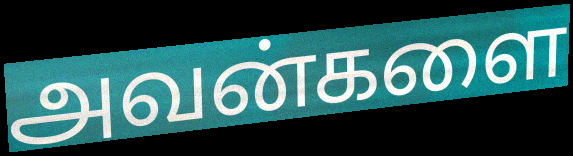
அவன்களை